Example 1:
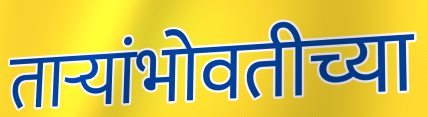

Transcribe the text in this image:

ताऱ्यांभोवतीच्या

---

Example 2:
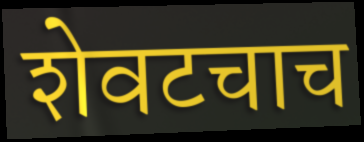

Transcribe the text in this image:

शेवटचाच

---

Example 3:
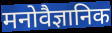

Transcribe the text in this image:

मनोवैज्ञानिक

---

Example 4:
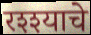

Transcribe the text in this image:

रश्श्याचे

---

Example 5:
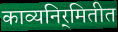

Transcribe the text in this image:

काव्यनिर्मितीत